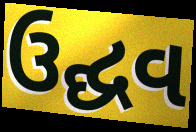
ઉદ્ઘવ